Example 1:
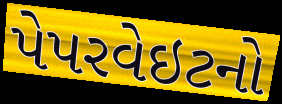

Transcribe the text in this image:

પેપરવેઇટનો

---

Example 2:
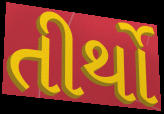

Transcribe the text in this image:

તીર્થો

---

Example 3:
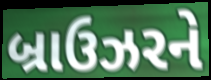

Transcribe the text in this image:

બ્રાઉઝરને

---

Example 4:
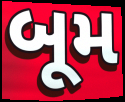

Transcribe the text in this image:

બૂમ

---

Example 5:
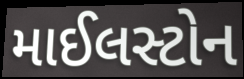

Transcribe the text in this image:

માઈલસ્ટોન